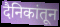
दैनिकांतून